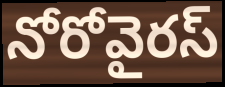
నోరోవైరస్